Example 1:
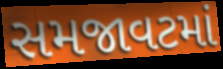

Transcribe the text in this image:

સમજાવટમાં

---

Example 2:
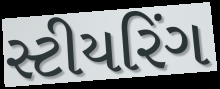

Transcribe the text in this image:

સ્ટીયરિંગ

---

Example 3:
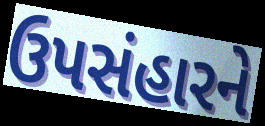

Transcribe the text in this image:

ઉપસંહારને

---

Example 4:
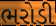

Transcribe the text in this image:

ભરોડી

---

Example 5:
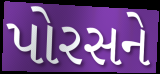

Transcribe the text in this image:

પોરસને